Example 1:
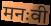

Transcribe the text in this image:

मनःवी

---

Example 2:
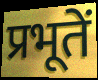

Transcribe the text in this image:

प्रभूतें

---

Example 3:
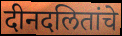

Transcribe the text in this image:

दीनदलितांचे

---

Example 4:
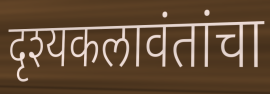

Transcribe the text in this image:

दृश्यकलावंतांचा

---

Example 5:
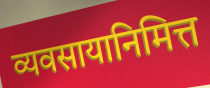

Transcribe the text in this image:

व्यवसायानिमित्त